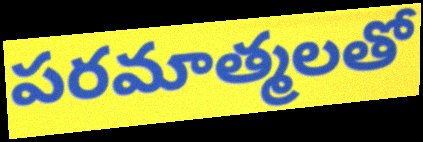
పరమాత్మలతో